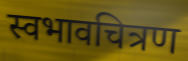
स्वभावचित्रण